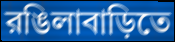
রঙিলাবাড়িতে